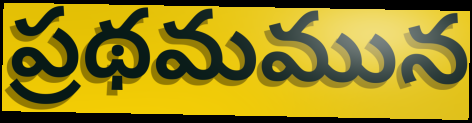
ప్రథమమున